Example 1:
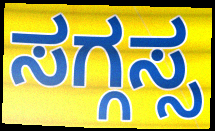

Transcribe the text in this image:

ಸಗ್ಗಸ್ಸ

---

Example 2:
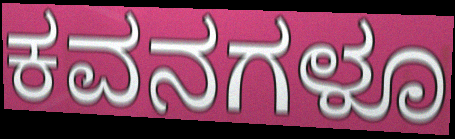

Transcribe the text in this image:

ಕವನಗಳೂ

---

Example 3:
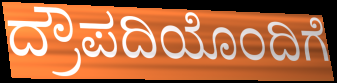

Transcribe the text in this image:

ದ್ರೌಪದಿಯೊಂದಿಗೆ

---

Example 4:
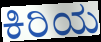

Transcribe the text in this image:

ಕಿರಿಯ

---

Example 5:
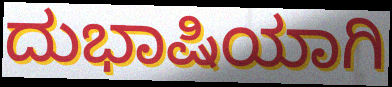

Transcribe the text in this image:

ದುಭಾಷಿಯಾಗಿ